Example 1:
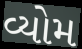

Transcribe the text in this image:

વ્યોમ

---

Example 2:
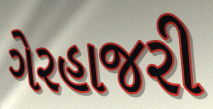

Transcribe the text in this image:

ગેરહાજરી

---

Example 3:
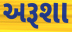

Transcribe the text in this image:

અરૂશા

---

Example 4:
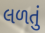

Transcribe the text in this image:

લળતું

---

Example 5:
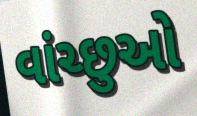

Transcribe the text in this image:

વાંચ્છુઓ